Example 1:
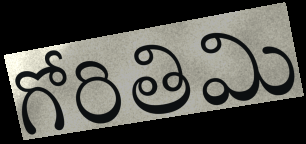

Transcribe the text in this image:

గోరితిమి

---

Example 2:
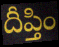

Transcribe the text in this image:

దీప్తిం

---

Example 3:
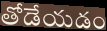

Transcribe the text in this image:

తోడేయడం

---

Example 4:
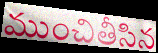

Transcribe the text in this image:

ముంచితీసిన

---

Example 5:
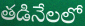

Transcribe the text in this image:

తడినేలలో